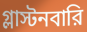
গ্লাস্টনবারি